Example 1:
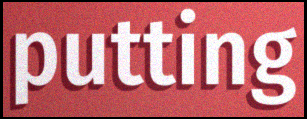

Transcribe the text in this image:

putting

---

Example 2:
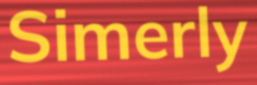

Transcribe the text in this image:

Simerly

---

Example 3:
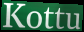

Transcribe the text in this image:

Kottu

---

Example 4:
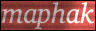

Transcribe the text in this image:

maphak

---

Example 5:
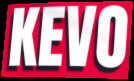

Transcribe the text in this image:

KEVO